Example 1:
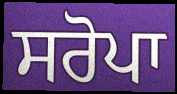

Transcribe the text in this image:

ਸਰੋਪਾ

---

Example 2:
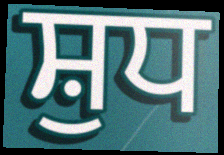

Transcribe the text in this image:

ਸ਼ੁਧ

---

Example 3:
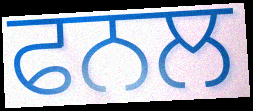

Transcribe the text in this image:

ਫਨਲ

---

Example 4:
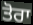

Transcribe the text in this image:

ਤੋਰਾ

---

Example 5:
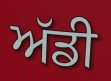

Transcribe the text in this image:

ਅੱਡੀ